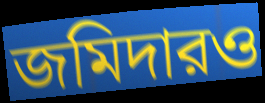
জমিদারও